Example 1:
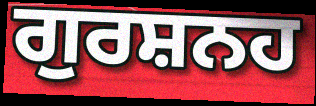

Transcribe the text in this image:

ਗੁਰਸ਼ਨਹ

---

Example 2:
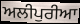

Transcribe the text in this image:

ਅਲੀਪੁਰੀਆ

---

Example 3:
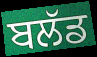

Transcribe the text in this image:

ਬਲੱਡ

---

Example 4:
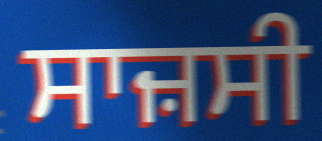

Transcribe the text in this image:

ਸਾਜ਼ਸੀ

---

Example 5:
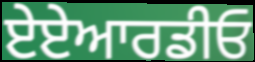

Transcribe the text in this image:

ਏਏਆਰਡੀਓ